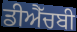
ਡੀਐੱਚਬੀ